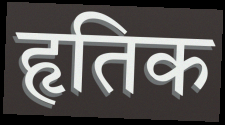
हृतिक